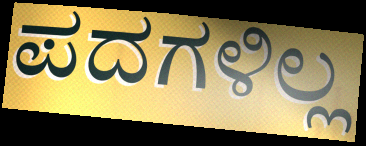
ಪದಗಳಿಲ್ಲ